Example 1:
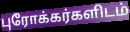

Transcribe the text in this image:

புரோக்கர்களிடம்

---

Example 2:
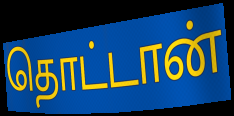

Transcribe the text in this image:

தொட்டான்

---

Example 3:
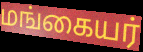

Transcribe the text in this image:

மங்கையர்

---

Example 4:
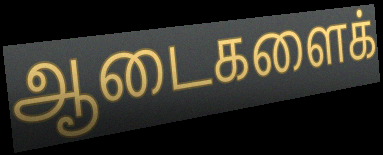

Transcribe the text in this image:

ஆடைகளைக்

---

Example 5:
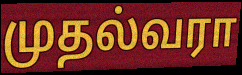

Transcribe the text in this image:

முதல்வரா